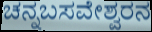
ಚನ್ನಬಸವೇಶ್ವರನ